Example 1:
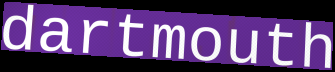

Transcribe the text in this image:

dartmouth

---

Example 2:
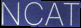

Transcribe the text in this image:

NCAT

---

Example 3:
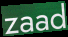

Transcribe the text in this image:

zaad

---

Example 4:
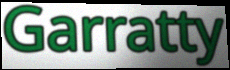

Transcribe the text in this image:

Garratty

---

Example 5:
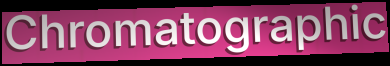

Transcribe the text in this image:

Chromatographic